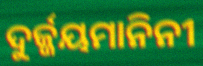
ଦୁର୍ଜ୍ଜୟମାନିନୀ